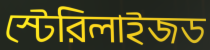
স্টেরিলাইজড